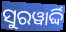
ସୁରୱାର୍ଦ୍ଦି